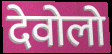
देवोलो